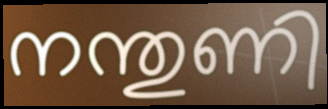
നന്തുണി